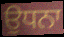
ਉਧਨਾ